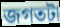
জগতটা